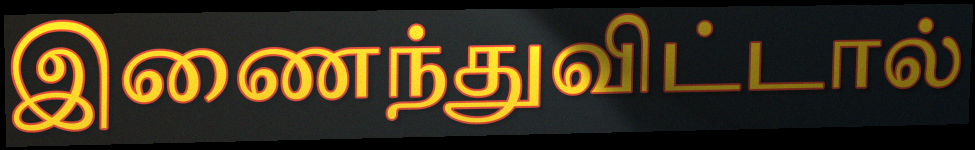
இணைந்துவிட்டால்